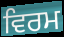
ਵਿਰਮ